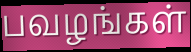
பவழங்கள்